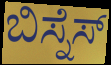
ಬಿಸ್ನೆಸ್